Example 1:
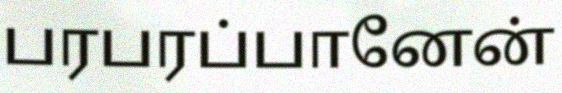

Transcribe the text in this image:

பரபரப்பானேன்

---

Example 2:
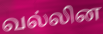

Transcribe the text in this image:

வல்லின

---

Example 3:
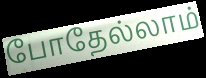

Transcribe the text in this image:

போதேல்லாம்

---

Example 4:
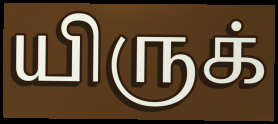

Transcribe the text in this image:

யிருக்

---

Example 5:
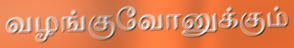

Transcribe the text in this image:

வழங்குவோனுக்கும்